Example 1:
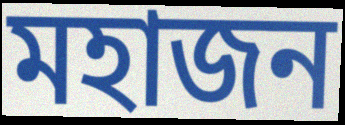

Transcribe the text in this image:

মহাজন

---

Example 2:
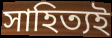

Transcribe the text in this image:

সাহিত্যই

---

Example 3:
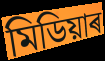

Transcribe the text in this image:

মিডিয়াৰ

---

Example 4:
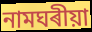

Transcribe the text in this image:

নামঘৰীয়া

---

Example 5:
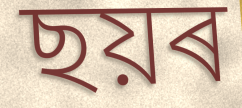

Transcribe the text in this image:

ছয়ৰ